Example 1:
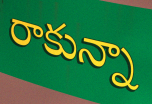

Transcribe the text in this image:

రాకున్నా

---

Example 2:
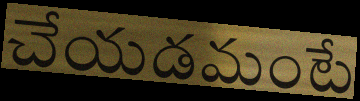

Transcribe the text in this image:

చేయడమంటే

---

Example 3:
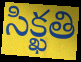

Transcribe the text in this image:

సిక్ఖతి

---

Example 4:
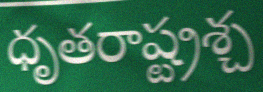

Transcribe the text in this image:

ధృతరాష్ట్రశ్చ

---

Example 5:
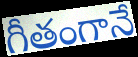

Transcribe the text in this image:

గీతంగానే